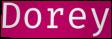
Dorey